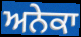
ਅਨੇਕਾ